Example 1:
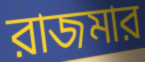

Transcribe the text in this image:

রাজমার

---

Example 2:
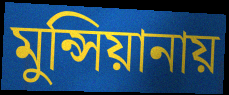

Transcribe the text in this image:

মুন্সিয়ানায়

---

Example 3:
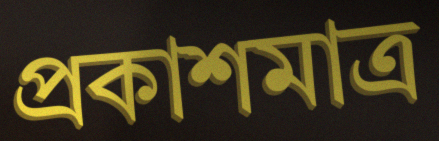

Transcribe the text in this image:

প্রকাশমাত্র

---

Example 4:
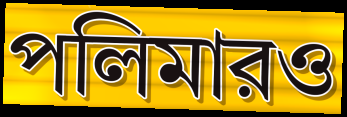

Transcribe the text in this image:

পলিমারও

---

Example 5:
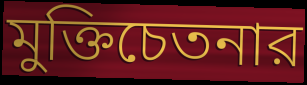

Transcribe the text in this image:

মুক্তিচেতনার